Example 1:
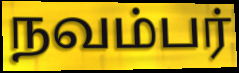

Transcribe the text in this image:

நவம்பர்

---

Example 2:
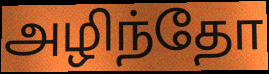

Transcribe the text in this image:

அழிந்தோ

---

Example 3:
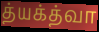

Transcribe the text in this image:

த்யக்த்வா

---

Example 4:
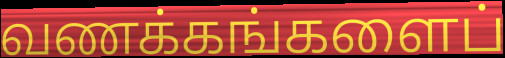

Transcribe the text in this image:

வணக்கங்களைப்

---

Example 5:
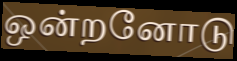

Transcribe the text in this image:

ஒன்றனோடு